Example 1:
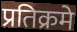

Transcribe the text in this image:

प्रतिक्रमे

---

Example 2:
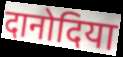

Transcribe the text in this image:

दानोदिया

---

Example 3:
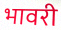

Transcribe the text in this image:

भावरी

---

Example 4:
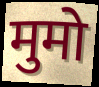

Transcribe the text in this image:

मुमो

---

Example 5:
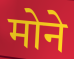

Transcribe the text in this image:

मोने